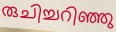
രുചിച്ചറിഞ്ഞു